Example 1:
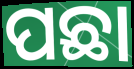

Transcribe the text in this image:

ପଛା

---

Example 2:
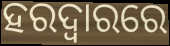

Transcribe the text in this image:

ହରଦ୍ୱାରରେ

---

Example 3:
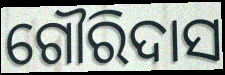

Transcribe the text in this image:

ଗୌରିଦାସ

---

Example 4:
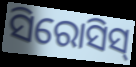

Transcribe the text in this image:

ସିରୋସିସ୍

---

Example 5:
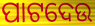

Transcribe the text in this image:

ପାଟଦେଉ